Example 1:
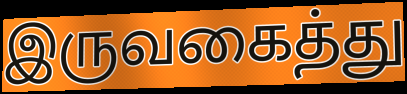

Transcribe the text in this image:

இருவகைத்து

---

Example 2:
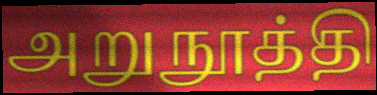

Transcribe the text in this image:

அறுநூத்தி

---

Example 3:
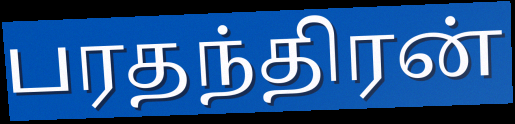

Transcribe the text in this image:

பரதந்திரன்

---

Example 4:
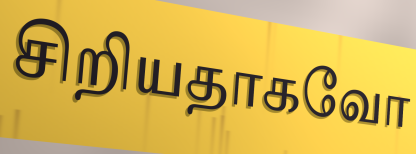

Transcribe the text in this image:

சிறியதாகவோ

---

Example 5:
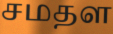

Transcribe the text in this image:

சமதள